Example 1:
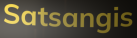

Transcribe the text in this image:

Satsangis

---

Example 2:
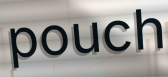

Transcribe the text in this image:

pouch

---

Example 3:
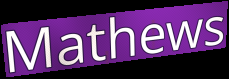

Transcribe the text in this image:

Mathews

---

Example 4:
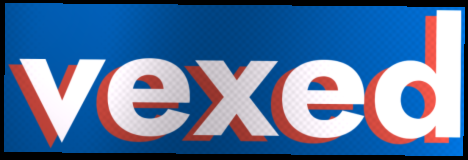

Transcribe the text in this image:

vexed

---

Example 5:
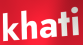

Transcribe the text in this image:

khati